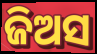
ଜିଅସ